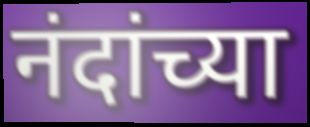
नंदांच्या